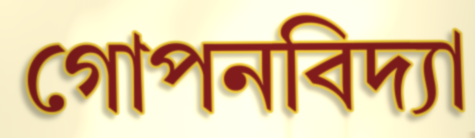
গোপনবিদ্যা